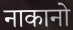
नाकानो